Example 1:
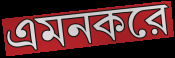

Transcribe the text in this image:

এমনকরে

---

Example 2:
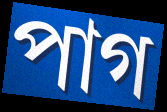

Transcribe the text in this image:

পাগ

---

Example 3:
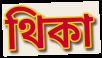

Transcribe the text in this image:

থিকা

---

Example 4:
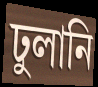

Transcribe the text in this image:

ঢুলানি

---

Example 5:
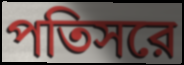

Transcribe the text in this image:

পতিসরে